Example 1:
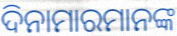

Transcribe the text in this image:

ଦିନାମାରମାନଙ୍କ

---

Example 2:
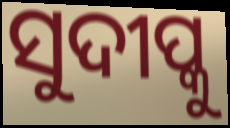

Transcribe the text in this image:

ସୁଦୀପ୍କୁ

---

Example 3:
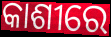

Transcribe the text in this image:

କାଶୀରେ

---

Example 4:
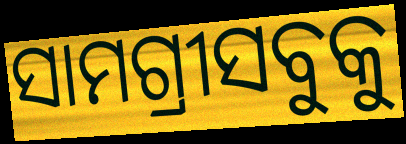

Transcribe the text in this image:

ସାମଗ୍ରୀସବୁକୁ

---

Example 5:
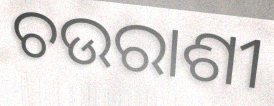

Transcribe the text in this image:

ଚଉରାଶୀ